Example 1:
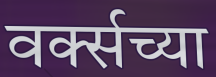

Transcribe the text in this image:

वर्क्‍सच्या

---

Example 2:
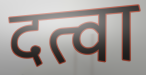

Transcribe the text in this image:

दत्वा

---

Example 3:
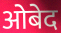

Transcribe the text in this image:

ओबेद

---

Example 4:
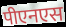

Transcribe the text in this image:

पीएनएस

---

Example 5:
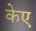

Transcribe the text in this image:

केए